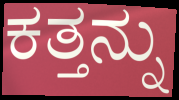
ಕತ್ತನ್ನು